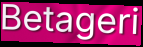
Betageri